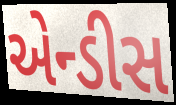
એન્ડીસ